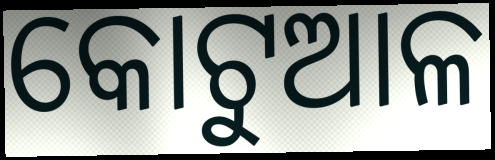
କୋଟୁଆଳ